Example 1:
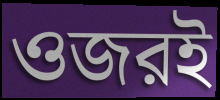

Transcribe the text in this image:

ওজরই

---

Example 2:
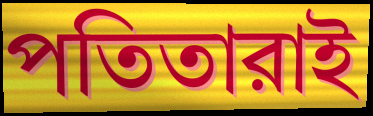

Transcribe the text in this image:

পতিতারাই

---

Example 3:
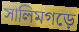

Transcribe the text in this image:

সালিমগড়ে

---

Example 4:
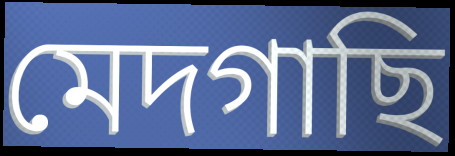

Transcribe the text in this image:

মেদগাছি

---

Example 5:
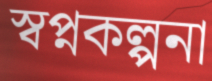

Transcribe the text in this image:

স্বপ্নকল্পনা